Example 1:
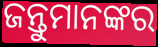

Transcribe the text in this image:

ଜନ୍ତୁମାନଙ୍କର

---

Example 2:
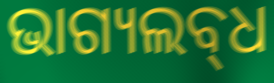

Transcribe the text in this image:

ଭାଗ୍ୟଲବ୍‌ଧ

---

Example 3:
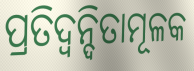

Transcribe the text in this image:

ପ୍ରତିଦ୍ୱନ୍ଦିତାମୂଳକ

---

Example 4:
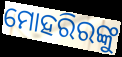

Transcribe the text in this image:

ମୋହରିରଙ୍କୁ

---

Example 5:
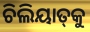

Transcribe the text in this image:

ଚିଲିୟାତ୍‍କୁ